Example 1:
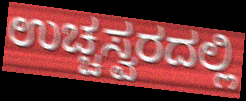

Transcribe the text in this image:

ಉಚ್ಚಸ್ವರದಲ್ಲಿ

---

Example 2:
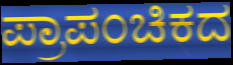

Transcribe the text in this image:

ಪ್ರಾಪಂಚಿಕದ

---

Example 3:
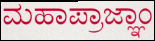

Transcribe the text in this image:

ಮಹಾಪ್ರಾಜ್ಞಾಂ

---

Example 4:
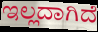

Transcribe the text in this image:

ಇಲ್ಲದಾಗಿದೆ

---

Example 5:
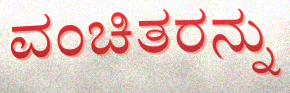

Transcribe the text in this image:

ವಂಚಿತರನ್ನು